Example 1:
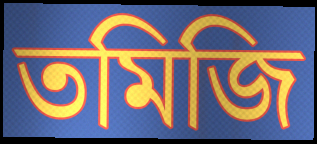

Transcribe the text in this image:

তমিজি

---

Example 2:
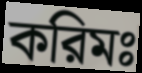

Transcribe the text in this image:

করিমঃ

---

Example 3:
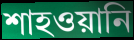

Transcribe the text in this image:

শাহওয়ানি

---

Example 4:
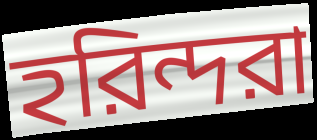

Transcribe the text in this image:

হরিন্দরা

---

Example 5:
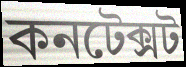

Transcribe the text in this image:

কনটেক্সট